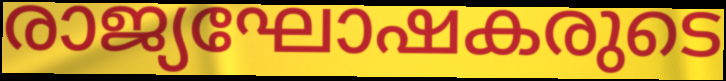
രാജ്യഘോഷകരുടെ